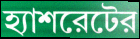
হ্যাশরেটের